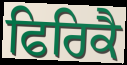
ਫਿਰਿਕੈ